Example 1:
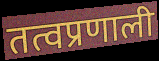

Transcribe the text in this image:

तत्वप्रणाली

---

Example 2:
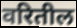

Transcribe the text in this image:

वरितील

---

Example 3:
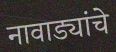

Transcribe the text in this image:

नावाड्यांचे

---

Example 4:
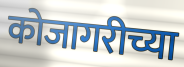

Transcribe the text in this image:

कोजागरीच्या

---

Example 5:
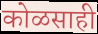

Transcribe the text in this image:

कोळसाही